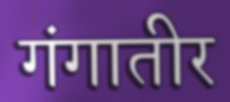
गंगातीर